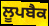
ਲੂਪਬੈਕ